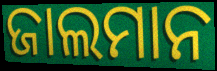
ଜାଲମାନ